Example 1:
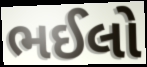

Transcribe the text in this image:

ભઈલો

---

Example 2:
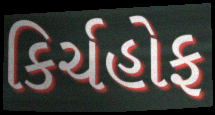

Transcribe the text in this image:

કિર્ચહોફ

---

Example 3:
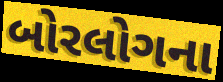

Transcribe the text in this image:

બોરલોગના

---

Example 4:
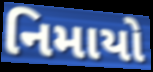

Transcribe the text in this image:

નિમાયો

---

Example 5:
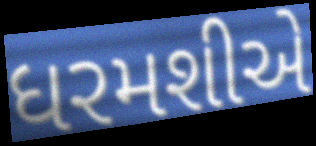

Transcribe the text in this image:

ધરમશીએ